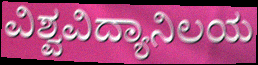
ವಿಶ್ವವಿದ್ಯಾನಿಲಯ